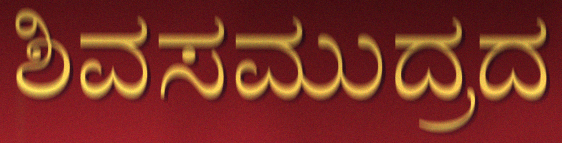
ಶಿವಸಮುದ್ರದ